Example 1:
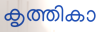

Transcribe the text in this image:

കൃത്തികാ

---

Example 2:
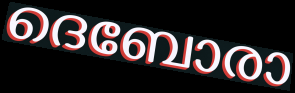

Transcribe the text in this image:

ദെബോരാ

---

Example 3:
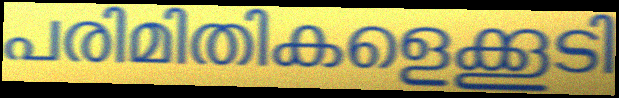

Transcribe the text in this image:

പരിമിതികളെക്കൂടി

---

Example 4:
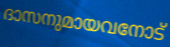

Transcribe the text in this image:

ദാസനുമായവനോട്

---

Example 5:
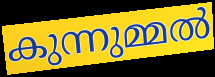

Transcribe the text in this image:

കുന്നുമ്മൽ